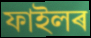
ফাইলৰ